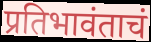
प्रतिभावंताचं